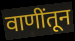
वाणींतून